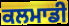
ਕਲਮਾਡੀ